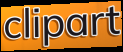
clipart